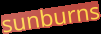
sunburns